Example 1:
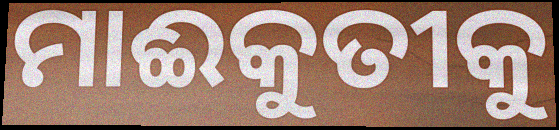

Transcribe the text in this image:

ମାଈକୁତୀକୁ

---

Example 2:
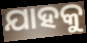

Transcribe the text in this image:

ଯାହକୁ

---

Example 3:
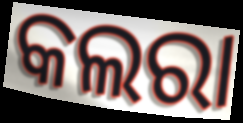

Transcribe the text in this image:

କଲରା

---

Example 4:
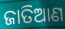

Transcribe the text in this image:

ଜାତିଆଣ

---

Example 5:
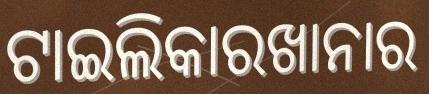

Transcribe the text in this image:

ଟାଇଲିକାରଖାନାର